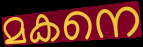
മകനെ